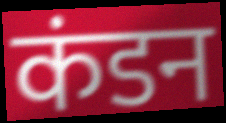
कंडन